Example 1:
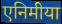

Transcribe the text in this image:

एनिमीया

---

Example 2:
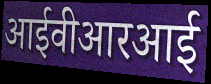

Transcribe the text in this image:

आईवीआरआई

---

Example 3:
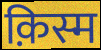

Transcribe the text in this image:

क़िस्‍म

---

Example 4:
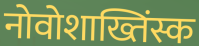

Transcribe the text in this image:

नोवोशाख्तिंस्क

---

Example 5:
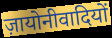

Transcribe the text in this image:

ज़ायोनीवादियों